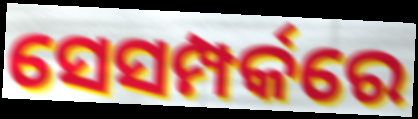
ସେସମ୍ପର୍କରେ